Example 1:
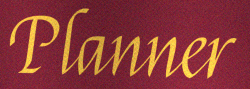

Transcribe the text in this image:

Planner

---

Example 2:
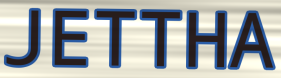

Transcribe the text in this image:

JETTHA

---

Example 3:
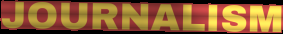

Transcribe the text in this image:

JOURNALISM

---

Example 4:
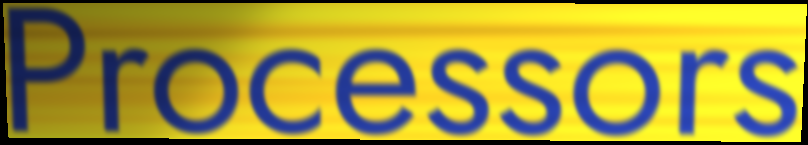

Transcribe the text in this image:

Processors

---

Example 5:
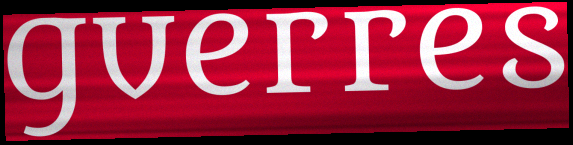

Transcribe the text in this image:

guerres